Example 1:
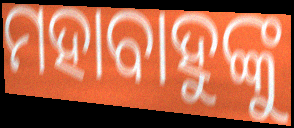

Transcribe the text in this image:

ମହାବାହୁଙ୍କୁ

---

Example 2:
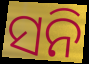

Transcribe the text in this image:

ସନି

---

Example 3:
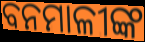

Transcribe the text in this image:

ବନମାଳୀଙ୍କ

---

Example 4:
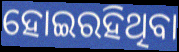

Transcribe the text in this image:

ହୋଇରହିଥିବା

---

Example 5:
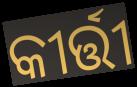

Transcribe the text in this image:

କୀର୍ତ୍ତୀ